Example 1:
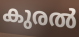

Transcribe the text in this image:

കുരൽ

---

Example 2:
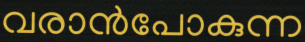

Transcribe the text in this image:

വരാൻപോകുന്ന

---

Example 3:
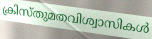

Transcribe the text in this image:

ക്രിസ്തുമതവിശ്വാസികൾ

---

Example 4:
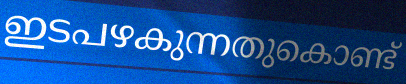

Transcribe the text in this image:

ഇടപഴകുന്നതുകൊണ്ട്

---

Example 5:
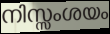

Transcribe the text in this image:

നിസ്സംശയം